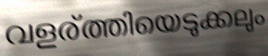
വളര്ത്തിയെടുക്കലും